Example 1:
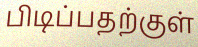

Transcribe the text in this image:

பிடிப்பதற்குள்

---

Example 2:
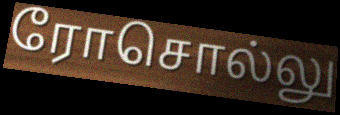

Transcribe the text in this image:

ரோசொல்லு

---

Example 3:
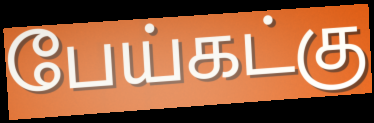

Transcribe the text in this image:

பேய்கட்கு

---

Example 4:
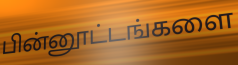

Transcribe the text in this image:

பின்னூட்டங்களை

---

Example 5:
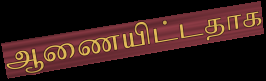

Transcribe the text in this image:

ஆணையிட்டதாக